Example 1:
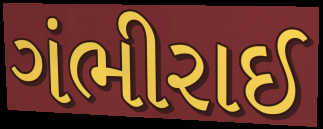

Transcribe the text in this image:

ગંભીરાઈ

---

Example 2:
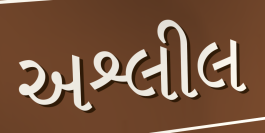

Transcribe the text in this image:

અશ્લીલ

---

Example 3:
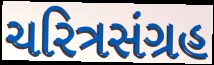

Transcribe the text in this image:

ચરિત્રસંગ્રહ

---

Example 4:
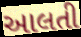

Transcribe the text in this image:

આલતી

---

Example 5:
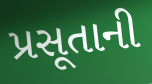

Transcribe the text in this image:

પ્રસૂતાની